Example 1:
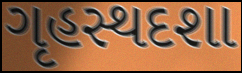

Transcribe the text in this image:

ગૃહસ્થદશા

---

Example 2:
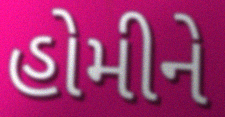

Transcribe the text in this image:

હોમીને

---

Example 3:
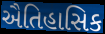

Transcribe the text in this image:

ઐતિહાસિક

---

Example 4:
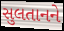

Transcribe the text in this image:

સુલતાનને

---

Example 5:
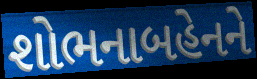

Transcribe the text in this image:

શોભનાબહેનને